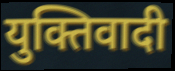
युक्तिवादी